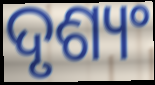
ଦୃଶ୍ୟଂ